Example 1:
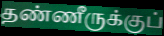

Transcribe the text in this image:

தண்ணீருக்குப்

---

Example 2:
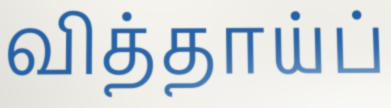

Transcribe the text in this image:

வித்தாய்ப்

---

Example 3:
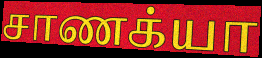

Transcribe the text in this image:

சாணக்யா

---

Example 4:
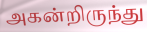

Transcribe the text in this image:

அகன்றிருந்து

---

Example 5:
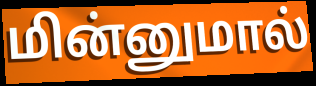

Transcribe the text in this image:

மின்னுமால்